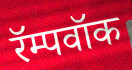
रॅम्पवॉक